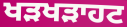
ਖੜਖੜਾਹਟ